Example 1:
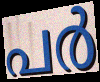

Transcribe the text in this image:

പർ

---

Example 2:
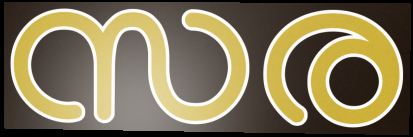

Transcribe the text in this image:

സര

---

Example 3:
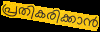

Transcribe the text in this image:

പ്രതികരിക്കാൻ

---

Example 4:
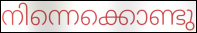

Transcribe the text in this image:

നിന്നെക്കൊണ്ടു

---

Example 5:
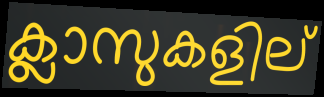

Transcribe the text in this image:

ക്ലാസുകളില്